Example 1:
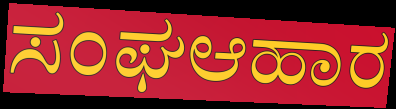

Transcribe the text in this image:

ಸಂಘಆಹಾರ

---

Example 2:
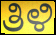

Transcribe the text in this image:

ತಿಳಿ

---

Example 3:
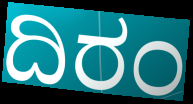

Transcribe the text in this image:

ದಿರಂ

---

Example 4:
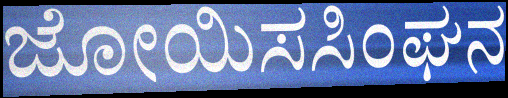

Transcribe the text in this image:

ಜೋಯಿಸಸಿಂಘನ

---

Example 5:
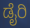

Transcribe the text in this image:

ಡೈರಿ